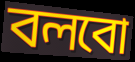
বলবো